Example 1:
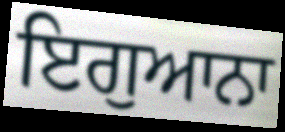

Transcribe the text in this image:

ਇਗੁਆਨਾ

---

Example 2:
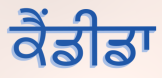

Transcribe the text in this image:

ਕੈਂਡੀਡਾ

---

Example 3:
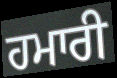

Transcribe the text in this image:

ਹਮਾਰੀ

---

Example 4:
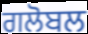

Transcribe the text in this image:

ਗਲੋਬਲ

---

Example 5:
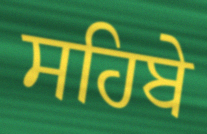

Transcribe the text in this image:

ਸਹਿਬੇ